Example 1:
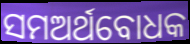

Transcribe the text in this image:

ସମଅର୍ଥବୋଧକ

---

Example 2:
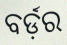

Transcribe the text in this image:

ବର୍ଡ଼ର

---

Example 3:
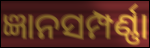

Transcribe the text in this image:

ଜ୍ଞାନସମ୍ପର୍ଣ୍ଣା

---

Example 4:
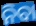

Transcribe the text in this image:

ନିବା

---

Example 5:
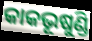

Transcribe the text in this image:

କାକଭୂଷୁଣ୍ଡି